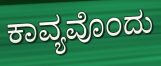
ಕಾವ್ಯವೊಂದು